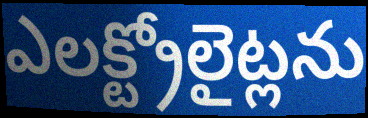
ఎలక్ట్రోలైట్లను